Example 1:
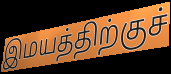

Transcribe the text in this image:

இமயத்திற்குச்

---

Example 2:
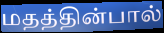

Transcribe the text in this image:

மதத்தின்பால்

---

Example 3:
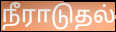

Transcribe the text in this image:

நீராடுதல்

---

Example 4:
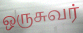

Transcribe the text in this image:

ஒருசுவர்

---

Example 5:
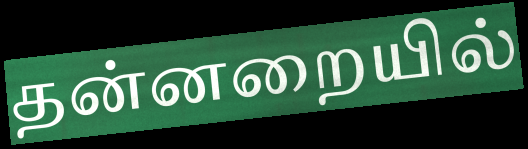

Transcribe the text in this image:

தன்னறையில்